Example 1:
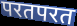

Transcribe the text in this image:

परतपरत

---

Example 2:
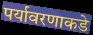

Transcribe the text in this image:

पर्यावरणाकडे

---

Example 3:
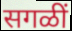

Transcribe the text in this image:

सगळीं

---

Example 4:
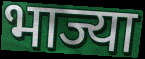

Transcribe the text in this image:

भाज्या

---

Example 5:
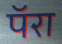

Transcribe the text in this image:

पॅरा